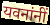
यवनांनीं